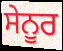
ਸੇਨੂਰ